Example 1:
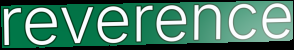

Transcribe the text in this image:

reverence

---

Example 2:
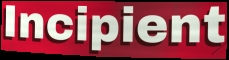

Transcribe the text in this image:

Incipient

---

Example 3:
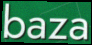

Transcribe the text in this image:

baza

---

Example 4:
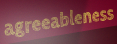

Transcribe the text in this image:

agreeableness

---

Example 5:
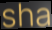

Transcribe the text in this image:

sha